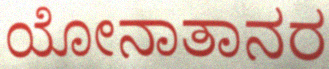
ಯೋನಾತಾನರ